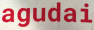
agudai